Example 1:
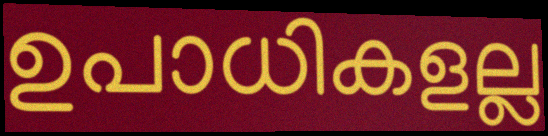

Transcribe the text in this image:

ഉപാധികളല്ല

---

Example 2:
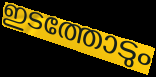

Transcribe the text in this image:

ഇടത്തോടും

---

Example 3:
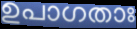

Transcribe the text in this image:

ഉപാഗതാഃ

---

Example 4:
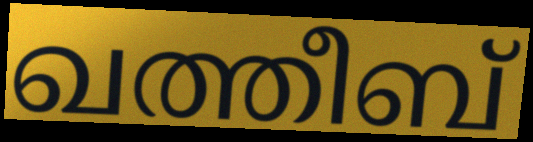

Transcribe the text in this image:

ഖത്തീബ്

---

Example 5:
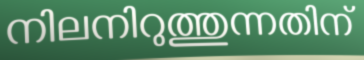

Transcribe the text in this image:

നിലനിറുത്തുന്നതിന്